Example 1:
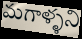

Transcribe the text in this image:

మగాళ్ళని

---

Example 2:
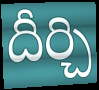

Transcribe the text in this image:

దీర్చి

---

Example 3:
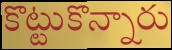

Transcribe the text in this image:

కొట్టుకొన్నారు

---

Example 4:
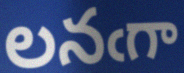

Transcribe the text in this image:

లనఁగా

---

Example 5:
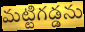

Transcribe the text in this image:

మట్టిగడ్డను